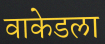
वाकेडला